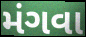
મંગવા